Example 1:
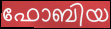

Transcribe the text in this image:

ഫോബിയ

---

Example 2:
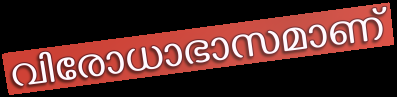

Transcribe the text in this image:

വിരോധാഭാസമാണ്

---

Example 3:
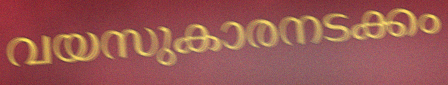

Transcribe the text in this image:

വയസുകാരനടക്കം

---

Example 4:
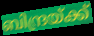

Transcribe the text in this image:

ബിന്ദ്രയ്ക്ക്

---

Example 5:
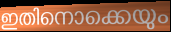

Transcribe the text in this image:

ഇതിനൊക്കെയും